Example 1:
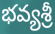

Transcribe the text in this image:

భవ్యశ్రీ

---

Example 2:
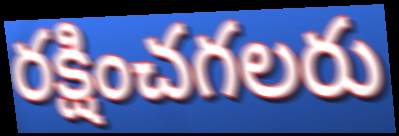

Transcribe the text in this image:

రక్షించగలరు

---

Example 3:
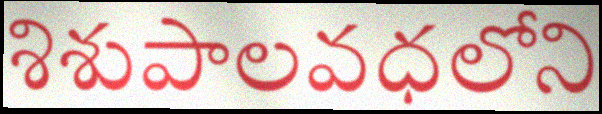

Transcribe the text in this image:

శిశుపాలవధలోని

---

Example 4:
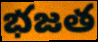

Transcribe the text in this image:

భజత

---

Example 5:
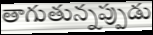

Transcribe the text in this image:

తాగుతున్నప్పుడు